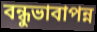
বন্ধুভাবাপন্ন